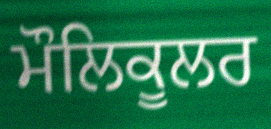
ਮੌਲਿਕੂਲਰ